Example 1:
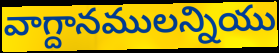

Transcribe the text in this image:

వాగ్దానములన్నియు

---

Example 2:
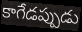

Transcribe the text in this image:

కాగేడప్పుడు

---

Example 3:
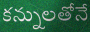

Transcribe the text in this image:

కన్నులతోనే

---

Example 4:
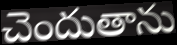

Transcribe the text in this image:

చెందుతాను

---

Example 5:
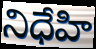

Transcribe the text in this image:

నిధేహి